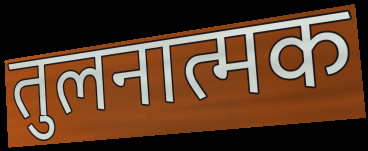
तुलनात्मक